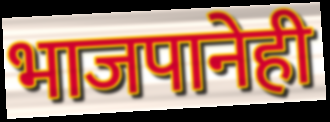
भाजपानेही